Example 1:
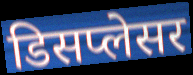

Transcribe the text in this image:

डिसप्लेसर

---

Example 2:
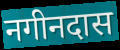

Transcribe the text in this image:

नगीनदास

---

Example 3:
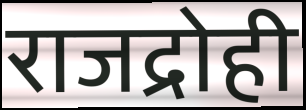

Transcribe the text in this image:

राजद्रोही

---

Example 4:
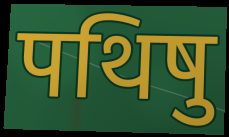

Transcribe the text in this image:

पथिषु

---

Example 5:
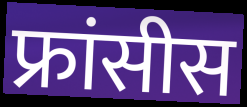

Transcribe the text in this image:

फ्रांसीस